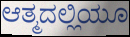
ಆತ್ಮದಲ್ಲಿಯೂ